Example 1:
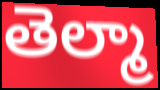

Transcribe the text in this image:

తెల్మా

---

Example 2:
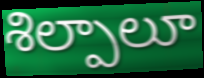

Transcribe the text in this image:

శిల్పాలూ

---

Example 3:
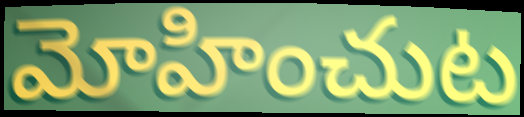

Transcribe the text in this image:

మోహించుట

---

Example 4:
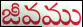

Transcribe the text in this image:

జీవము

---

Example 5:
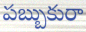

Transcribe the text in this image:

పబ్బుకురా